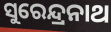
ସୁରେନ୍ଦ୍ରନାଥ